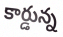
కార్డున్న